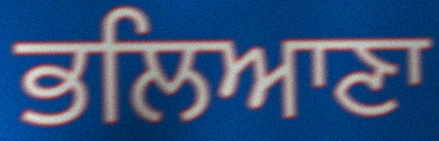
ਭਲਿਆਣਾ